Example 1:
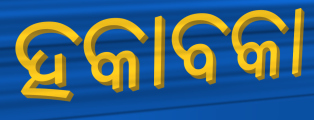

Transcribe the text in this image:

ହକାବକା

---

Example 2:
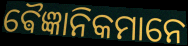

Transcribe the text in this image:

ଵୈଜ୍ଞାନିକମାନେ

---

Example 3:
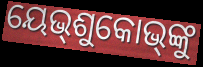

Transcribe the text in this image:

ୟେଭ୍‌ଶୁକୋଭ୍‌ଙ୍କୁ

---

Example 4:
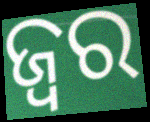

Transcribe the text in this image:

ଜ୍ବର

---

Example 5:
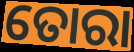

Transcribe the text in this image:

ତୋରା